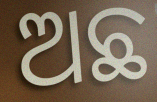
ଅଛ